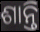
ଶାନ୍ତି